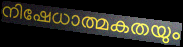
നിഷേധാത്മകതയും